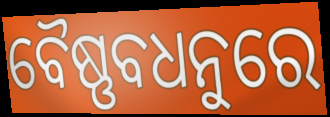
ବୈଷ୍ଣବଧନୁରେ